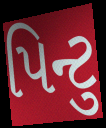
પિન્ટુ